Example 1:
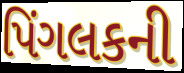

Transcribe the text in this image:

પિંગલકની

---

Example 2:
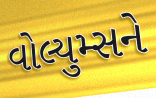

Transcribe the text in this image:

વોલ્યુમ્સને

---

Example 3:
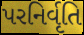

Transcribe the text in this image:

પરનિર્વૃતિ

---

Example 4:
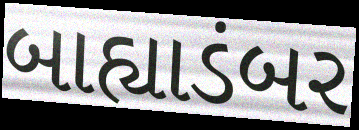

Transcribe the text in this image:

બાહ્યાડંબર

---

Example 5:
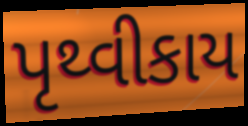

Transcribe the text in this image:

પૃથ્વીકાય